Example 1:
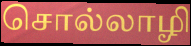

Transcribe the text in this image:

சொல்லாழி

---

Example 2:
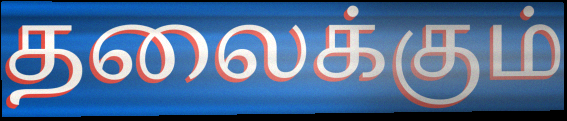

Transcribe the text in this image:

தலைக்கும்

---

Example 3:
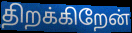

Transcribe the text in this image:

திறக்கிறேன்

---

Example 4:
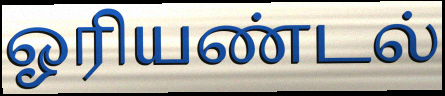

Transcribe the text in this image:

ஓரியண்டல்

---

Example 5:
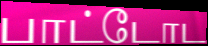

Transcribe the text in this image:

பாட்டோட